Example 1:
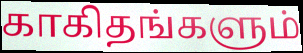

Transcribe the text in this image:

காகிதங்களும்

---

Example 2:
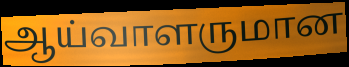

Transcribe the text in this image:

ஆய்வாளருமான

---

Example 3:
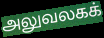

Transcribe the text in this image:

அலுவலகக்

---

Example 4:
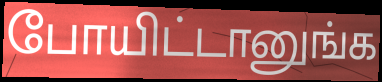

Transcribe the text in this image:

போயிட்டானுங்க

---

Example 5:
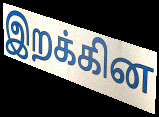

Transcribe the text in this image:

இறக்கின